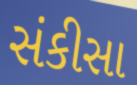
સંકીસા